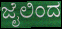
ಜೈಲಿಂದ